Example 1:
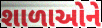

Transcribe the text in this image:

શાળાઓને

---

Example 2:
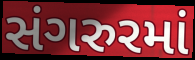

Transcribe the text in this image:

સંગરુરમાં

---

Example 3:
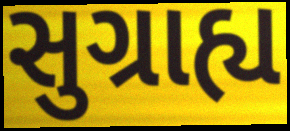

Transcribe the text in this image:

સુગ્રાહ્ય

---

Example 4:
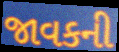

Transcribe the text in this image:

જાવકની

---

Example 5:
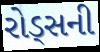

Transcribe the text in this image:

રોડ્સની